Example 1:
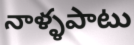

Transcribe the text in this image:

నాళ్ళపాటు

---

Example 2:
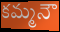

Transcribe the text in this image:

కమ్మనౌ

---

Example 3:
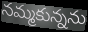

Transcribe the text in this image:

నమ్మకున్నను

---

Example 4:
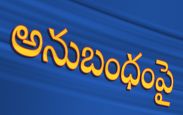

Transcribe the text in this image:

అనుబంధంపై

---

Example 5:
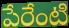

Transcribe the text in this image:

పేరేంటి